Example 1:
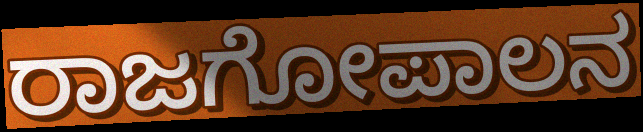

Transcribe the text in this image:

ರಾಜಗೋಪಾಲನ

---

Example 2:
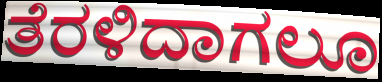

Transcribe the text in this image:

ತೆರಳಿದಾಗಲೂ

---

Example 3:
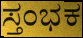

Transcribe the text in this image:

ಸ್ತಂಭಕ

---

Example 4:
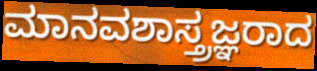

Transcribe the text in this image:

ಮಾನವಶಾಸ್ತ್ರಜ್ಞರಾದ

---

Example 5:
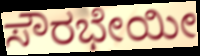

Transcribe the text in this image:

ಸೌರಭೇಯೀ